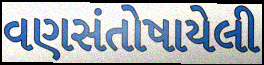
વણસંતોષાયેલી